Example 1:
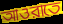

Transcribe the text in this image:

আওরাতে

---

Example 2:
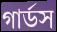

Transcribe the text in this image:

গার্ডস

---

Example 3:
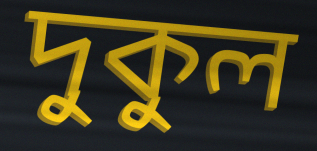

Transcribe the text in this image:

দুকুল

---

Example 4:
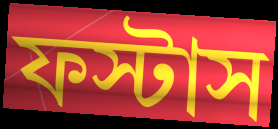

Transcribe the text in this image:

ফস্টাস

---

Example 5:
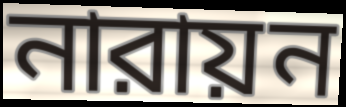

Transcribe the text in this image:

নারায়ন